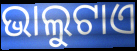
ଭାଲୁଟାଏ